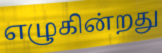
எழுகின்றது